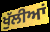
ਖੁੱਲੀਆਂ